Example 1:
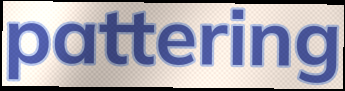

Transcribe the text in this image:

pattering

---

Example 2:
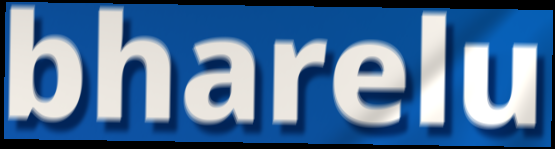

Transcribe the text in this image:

bharelu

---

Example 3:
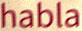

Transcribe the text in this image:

habla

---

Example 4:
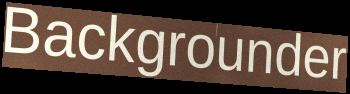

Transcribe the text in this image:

Backgrounder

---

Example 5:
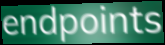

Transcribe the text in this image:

endpoints